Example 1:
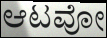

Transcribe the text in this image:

ಆಟವೋ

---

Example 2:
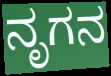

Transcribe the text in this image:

ನೃಗನ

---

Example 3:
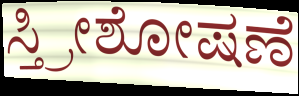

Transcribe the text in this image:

ಸ್ತ್ರೀಶೋಷಣೆ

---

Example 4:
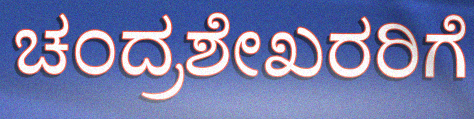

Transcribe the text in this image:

ಚಂದ್ರಶೇಖರರಿಗೆ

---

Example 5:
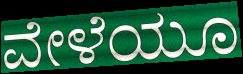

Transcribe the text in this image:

ವೇಳೆಯೂ